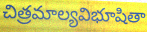
చిత్రమాల్యవిభూషితా